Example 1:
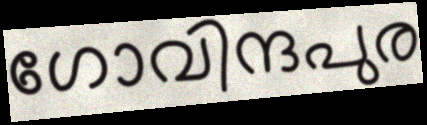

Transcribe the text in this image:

ഗോവിന്ദപുര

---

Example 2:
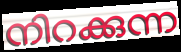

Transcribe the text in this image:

നിറക്കുന്ന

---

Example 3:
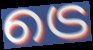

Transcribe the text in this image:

ട്രെ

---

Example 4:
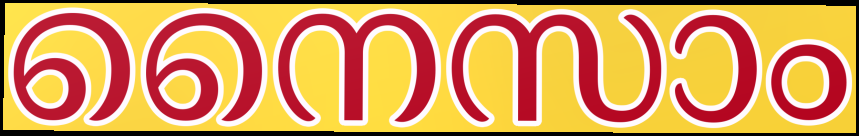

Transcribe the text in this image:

നൈസാം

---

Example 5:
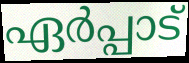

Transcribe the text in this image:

ഏർപ്പാട്